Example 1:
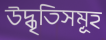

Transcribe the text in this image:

উদ্ধৃতিসমূহ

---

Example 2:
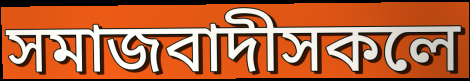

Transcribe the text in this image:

সমাজবাদীসকলে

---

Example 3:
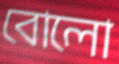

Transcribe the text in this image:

বোলো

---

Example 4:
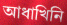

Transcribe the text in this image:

আধাখিনি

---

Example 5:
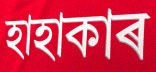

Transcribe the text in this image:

হাহাকাৰ